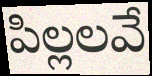
పిల్లలవే